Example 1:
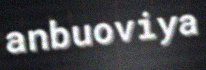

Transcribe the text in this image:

anbuoviya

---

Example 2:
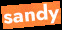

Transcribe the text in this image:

sandy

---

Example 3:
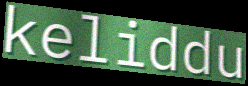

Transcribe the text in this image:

keliddu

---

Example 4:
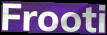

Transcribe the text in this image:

Frooti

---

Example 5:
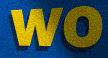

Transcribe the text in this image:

wo